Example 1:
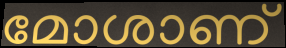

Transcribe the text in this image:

മോശാണ്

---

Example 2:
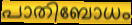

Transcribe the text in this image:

പാതിബോധം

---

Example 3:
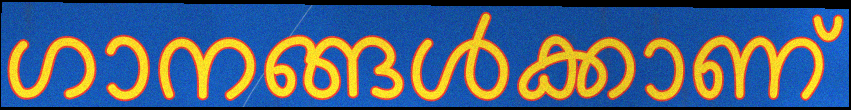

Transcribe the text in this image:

ഗാനങ്ങൾക്കാണ്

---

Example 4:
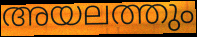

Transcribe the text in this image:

അയലത്തും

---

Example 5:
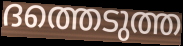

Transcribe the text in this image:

ദത്തെടുത്ത